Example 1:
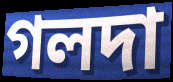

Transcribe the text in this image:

গলদা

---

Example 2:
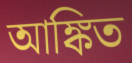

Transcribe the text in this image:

আঙ্কিত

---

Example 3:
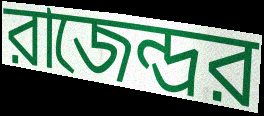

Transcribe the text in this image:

রাজেন্দ্রর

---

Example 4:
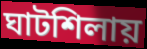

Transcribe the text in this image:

ঘাটশিলায়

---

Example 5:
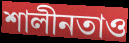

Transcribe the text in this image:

শালীনতাও